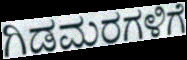
ಗಿಡಮರಗಳಿಗೆ